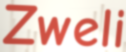
Zweli